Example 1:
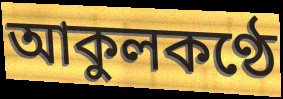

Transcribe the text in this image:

আকুলকণ্ঠে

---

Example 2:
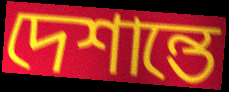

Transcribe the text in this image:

দেশান্তে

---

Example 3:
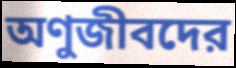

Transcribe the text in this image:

অণুজীবদের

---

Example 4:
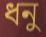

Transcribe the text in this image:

ধনু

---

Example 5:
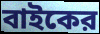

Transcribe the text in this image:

বাইকের